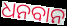
ଧନବାନ